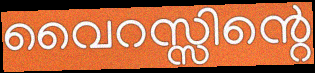
വൈറസ്സിന്റെ